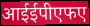
आईईपीएफए